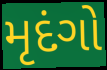
મૃદંગો